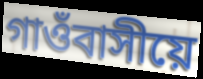
গাওঁবাসীয়ে